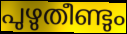
പുഴുതീണ്ടും